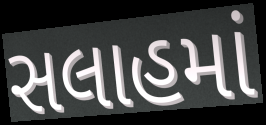
સલાહમાં